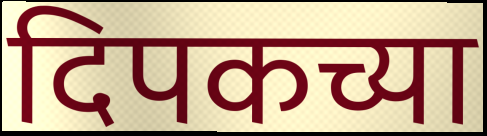
दिपकच्या